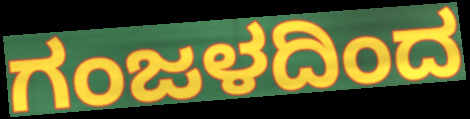
ಗಂಜಳದಿಂದ